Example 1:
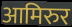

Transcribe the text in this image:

आमिरुर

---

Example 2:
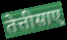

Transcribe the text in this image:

तेत्तीसाए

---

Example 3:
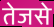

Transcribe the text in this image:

तेजसे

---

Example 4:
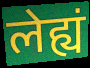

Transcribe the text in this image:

लेह्यं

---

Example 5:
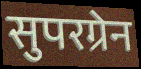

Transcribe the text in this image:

सुपरग्रेन